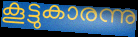
കൂട്ടുകാരന്നു